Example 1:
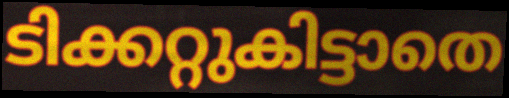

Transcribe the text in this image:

ടിക്കറ്റുകിട്ടാതെ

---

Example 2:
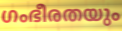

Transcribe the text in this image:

ഗംഭീരതയും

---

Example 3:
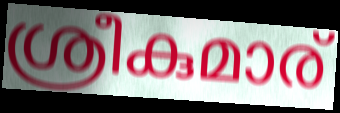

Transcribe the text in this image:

ശ്രീകുമാര്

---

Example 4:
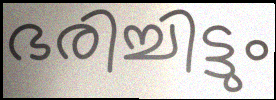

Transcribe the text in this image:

ഭരിച്ചിട്ടും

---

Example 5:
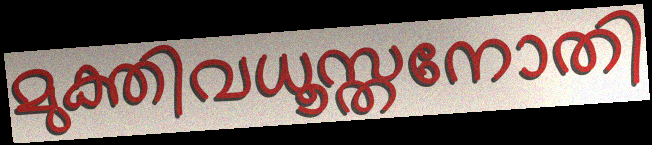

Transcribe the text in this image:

മുക്തിവധൂസ്തനോതി